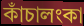
কাঁচালংকা